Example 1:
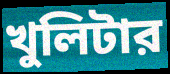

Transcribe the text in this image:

খুলিটার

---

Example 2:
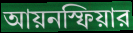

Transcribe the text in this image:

আয়নস্ফিয়ার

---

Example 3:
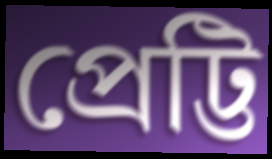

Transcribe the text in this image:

প্রেট্টি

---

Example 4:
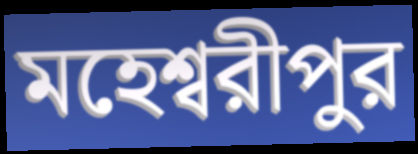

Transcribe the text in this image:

মহেশ্বরীপুর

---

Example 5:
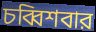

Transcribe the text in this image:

চব্বিশবার